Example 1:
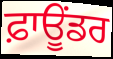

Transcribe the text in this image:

ਫ਼ਾਊਂਡਰ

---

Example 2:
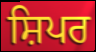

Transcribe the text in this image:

ਸ਼ਿਪਰ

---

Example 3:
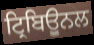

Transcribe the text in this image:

ਟ੍ਰਿਬਿਊੁਨਲ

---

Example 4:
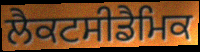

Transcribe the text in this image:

ਲੈਕਟਸੀਡੈਮਿਕ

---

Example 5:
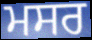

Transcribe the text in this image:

ਮਸਰ